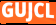
GUJCL